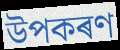
উপকৰণ